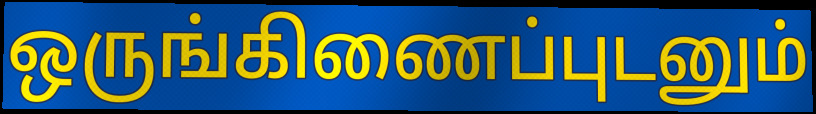
ஒருங்கிணைப்புடனும்